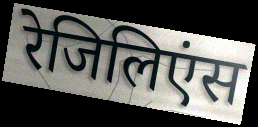
रेजिलिएंस